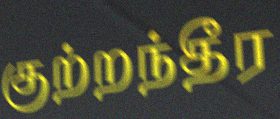
குற்றந்தீர